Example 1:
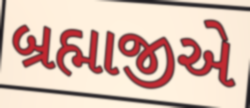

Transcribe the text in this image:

બ્રહ્માજીએ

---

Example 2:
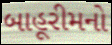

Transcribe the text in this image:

બાહૂરીમનો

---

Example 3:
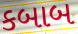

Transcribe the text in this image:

કબાબ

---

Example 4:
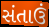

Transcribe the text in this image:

સંતાઉં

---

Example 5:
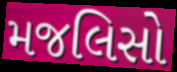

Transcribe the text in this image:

મજલિસો